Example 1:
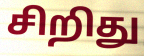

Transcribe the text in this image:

சிறிது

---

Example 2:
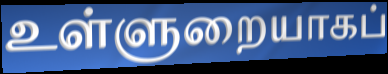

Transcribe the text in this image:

உள்ளுறையாகப்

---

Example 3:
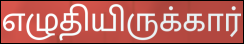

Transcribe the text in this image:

எழுதியிருக்கார்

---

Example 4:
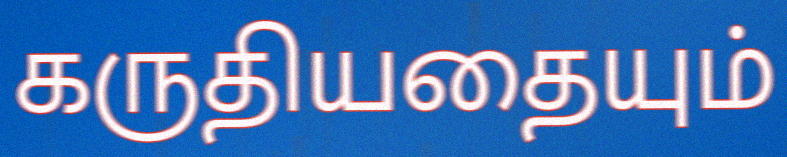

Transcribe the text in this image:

கருதியதையும்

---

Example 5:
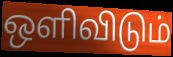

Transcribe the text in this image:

ஒளிவிடும்